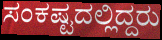
ಸಂಕಷ್ಟದಲ್ಲಿದ್ದರು